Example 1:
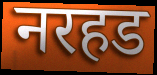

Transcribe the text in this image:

नरहड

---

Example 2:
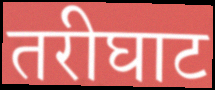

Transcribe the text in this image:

तरीघाट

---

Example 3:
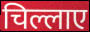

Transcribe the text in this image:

चिल्लाए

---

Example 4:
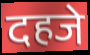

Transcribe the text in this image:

दहजे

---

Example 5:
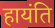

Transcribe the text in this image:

हायंति